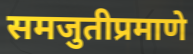
समजुतीप्रमाणे